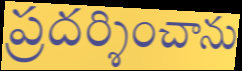
ప్రదర్శించాను